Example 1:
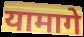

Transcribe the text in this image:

यामागे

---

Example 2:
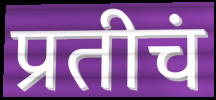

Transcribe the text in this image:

प्रतीचं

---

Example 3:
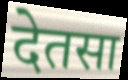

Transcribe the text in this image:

देतसा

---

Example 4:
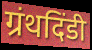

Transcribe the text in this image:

ग्रंथदिंडी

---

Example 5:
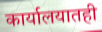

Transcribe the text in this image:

कार्यालयातही